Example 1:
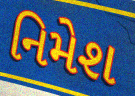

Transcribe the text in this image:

નિમેશ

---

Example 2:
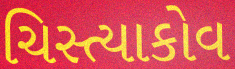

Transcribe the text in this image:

ચિસ્ત્યાકોવ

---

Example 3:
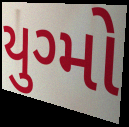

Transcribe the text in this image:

યુગ્મો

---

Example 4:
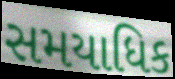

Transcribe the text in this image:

સમયાધિક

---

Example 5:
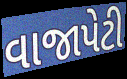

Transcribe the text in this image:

વાજાપેટી